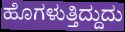
ಹೊಗಳುತ್ತಿದ್ದುದು